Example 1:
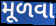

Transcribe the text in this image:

મૂળવા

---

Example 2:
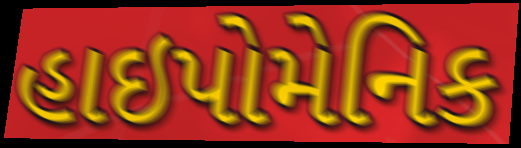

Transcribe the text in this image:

હાઇપોમેનિક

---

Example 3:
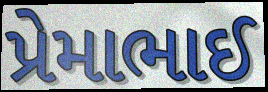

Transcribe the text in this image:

પ્રેમાભાઈ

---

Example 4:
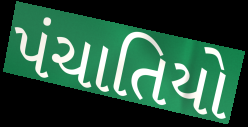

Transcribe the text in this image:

પંચાતિયો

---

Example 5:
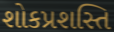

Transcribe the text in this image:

શોકપ્રશસ્તિ